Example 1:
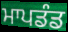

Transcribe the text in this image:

ਮਾਪਡੰਡ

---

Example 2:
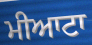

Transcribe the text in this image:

ਮੀਆਟਾ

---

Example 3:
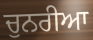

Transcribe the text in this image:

ਚੁਨਰੀਆ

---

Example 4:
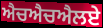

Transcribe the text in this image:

ਐਚਐਚਐਲਏ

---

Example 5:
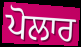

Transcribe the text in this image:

ਪੋਲਾਰ